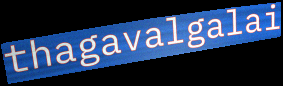
thagavalgalai